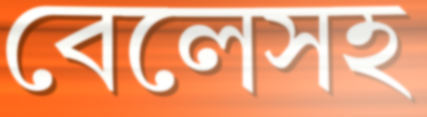
বেলেসহ